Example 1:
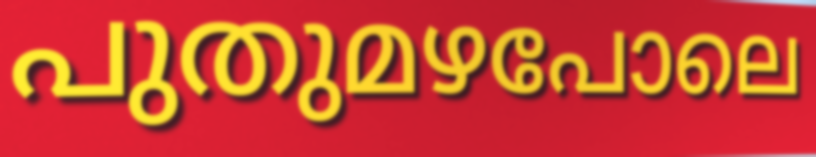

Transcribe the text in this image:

പുതുമഴപോലെ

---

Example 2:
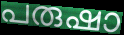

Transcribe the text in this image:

പരുഷാ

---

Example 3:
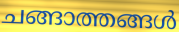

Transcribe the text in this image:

ചങ്ങാത്തങ്ങൾ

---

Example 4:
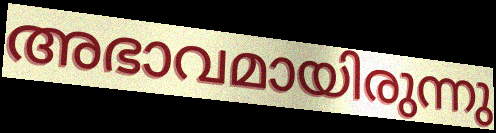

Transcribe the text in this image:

അഭാവമായിരുന്നു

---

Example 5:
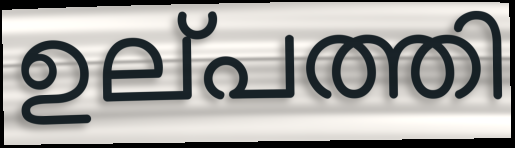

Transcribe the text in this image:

ഉല്‌പത്തി